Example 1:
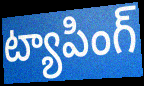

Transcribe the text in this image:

ట్యాపింగ్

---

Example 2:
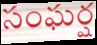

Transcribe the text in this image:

సంఘర్ష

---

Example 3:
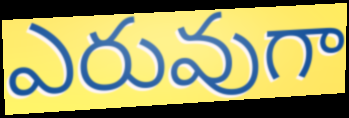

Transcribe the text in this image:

ఎరువుగా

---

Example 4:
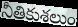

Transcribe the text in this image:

నీతికుశలుం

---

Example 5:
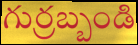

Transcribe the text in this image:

గుర్రబ్బండి